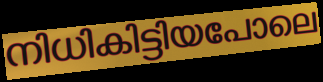
നിധികിട്ടിയപോലെ